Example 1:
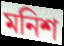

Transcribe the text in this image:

মনিশ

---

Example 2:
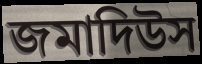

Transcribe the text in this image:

জমাদিউস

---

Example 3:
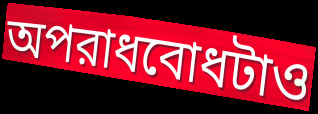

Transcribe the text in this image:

অপরাধবোধটাও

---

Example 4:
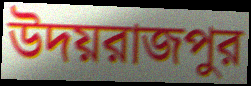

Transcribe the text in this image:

উদয়রাজপুর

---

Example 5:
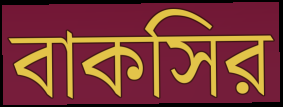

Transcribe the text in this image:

বাকসির